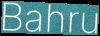
Bahru